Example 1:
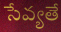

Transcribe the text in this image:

సేవ్యతే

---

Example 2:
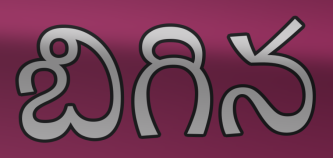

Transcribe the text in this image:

బిగిన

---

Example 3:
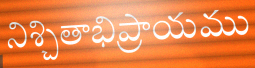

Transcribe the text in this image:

నిశ్చితాభిప్రాయము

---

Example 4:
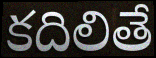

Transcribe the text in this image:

కదిలితే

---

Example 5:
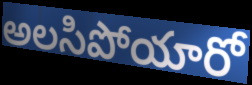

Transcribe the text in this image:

అలసిపోయారో